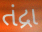
તંદ્રા